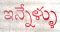
ఇన్నేళ్ళు